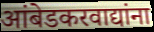
आंबेडकरवाद्यांना